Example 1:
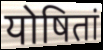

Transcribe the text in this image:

योषितां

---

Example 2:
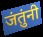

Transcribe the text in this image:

जंतुंनी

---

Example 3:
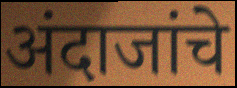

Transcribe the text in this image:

अंदाजांचे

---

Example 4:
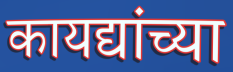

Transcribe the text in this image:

कायद्यांच्या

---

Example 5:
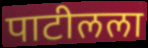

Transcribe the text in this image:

पाटीलला